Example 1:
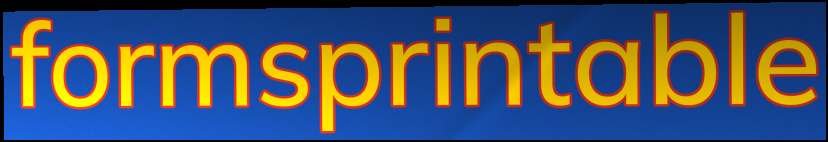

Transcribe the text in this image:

formsprintable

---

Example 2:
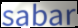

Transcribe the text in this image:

sabar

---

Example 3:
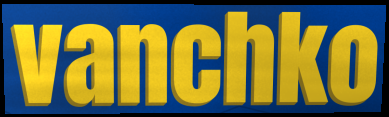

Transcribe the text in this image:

vanchko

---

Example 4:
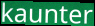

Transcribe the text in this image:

kaunter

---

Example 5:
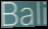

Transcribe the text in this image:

Bali